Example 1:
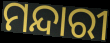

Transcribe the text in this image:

ମନ୍ଦାରୀ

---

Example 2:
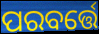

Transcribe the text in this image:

ପରବର୍ତ୍ତେ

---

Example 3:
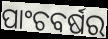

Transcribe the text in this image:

ପାଂଚବର୍ଷର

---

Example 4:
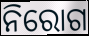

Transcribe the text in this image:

ନିରୋଗ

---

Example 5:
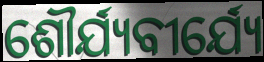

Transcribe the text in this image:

ଶୌର୍ଯ୍ୟବୀର୍ଯ୍ୟେ